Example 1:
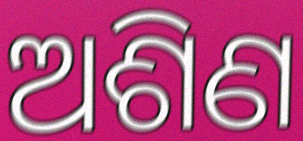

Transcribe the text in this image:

ଅଶିଣ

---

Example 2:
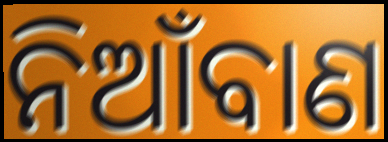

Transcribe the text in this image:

ନିଆଁବାଣ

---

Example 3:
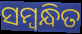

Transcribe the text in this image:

ସମ୍ଵନ୍ଧିତ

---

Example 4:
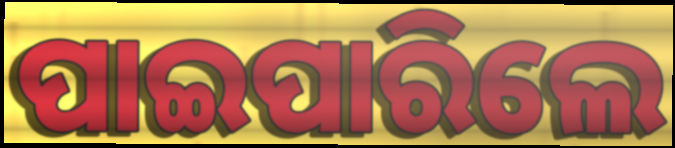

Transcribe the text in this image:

ପାଇପାରିଲେ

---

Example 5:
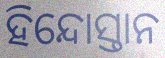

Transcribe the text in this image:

ହିନ୍ଦୋସ୍ତାନ